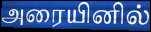
அரையினில்